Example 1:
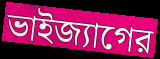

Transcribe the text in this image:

ভাইজ্যাগের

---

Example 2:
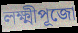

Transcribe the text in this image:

লক্ষ্মীপূজো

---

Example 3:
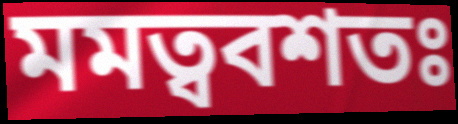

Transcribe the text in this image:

মমত্ববশতঃ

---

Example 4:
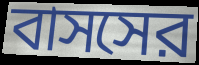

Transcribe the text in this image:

বাসসের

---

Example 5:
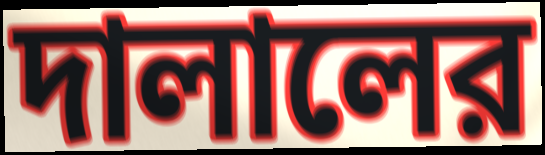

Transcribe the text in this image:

দালালের